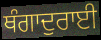
ਥੰਗਾਦੁਰਾਈ